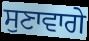
ਸੁਣਾਵਾਗੇ